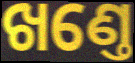
ଖଣ୍ତେ